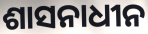
ଶାସନାଧୀନ